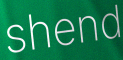
shend